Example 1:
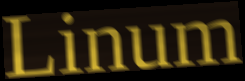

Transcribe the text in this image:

Linum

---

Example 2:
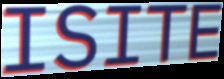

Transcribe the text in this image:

ISITE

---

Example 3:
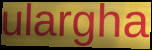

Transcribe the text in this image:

ulargha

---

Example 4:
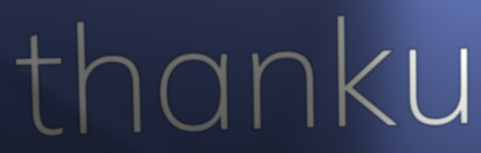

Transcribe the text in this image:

thanku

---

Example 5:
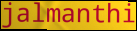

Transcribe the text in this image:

jalmanthi